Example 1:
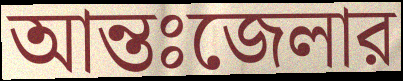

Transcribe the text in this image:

আন্তঃজেলার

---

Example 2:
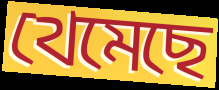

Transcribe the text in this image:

থেমেছে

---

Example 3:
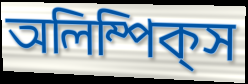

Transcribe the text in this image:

অলিম্পিক্‌স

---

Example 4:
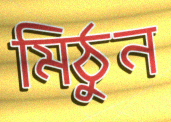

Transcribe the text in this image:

মিঠুন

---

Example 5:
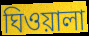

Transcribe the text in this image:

ঘিওয়ালা